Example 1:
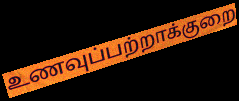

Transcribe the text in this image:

உணவுப்பற்றாக்குறை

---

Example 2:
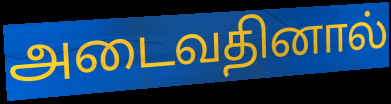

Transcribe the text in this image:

அடைவதினால்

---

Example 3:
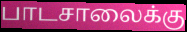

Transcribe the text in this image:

பாடசாலைக்கு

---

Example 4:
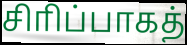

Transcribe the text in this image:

சிரிப்பாகத்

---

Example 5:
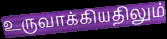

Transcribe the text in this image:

உருவாக்கியதிலும்